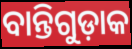
ବାନ୍ତିଗୁଡ଼ାକ